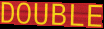
DOUBLE